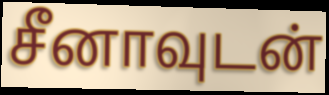
சீனாவுடன்